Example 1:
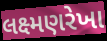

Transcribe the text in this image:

લક્ષ્મણરેખા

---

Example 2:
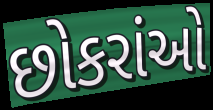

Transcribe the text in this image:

છોકરાંઓ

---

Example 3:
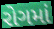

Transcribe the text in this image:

રોગમાં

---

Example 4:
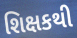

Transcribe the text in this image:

શિક્ષકથી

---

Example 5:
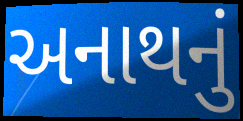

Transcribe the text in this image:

અનાથનું